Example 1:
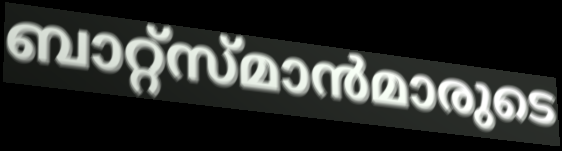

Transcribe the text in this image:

ബാറ്റ്സ്മാൻമാരുടെ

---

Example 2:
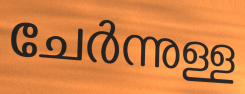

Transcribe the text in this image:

ചേർന്നുള്ള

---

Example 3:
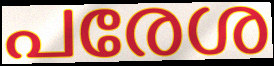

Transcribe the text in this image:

പരേശ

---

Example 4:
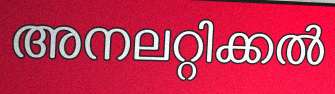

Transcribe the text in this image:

അനലറ്റിക്കൽ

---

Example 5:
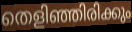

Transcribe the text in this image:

തെളിഞ്ഞിരിക്കും